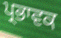
ਪ੍ਰਭਾਵਕ